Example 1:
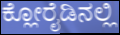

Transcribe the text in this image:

ಕ್ಲೋರೈಡಿನಲ್ಲಿ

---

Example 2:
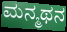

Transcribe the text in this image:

ಮನ್ಮಥನ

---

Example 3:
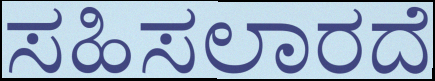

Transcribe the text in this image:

ಸಹಿಸಲಾರದೆ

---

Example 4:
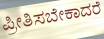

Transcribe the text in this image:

ಪ್ರೀತಿಸಬೇಕಾದರೆ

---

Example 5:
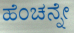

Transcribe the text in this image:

ಹೆಂಚನ್ನೇ